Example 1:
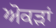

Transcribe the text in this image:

ਅੋਕੜਾਂ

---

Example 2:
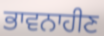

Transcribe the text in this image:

ਭਾਵਨਾਹੀਣ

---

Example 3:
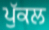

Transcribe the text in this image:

ਪੁੱਕਲ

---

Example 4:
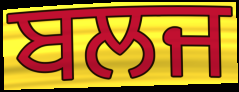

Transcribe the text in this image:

ਬਲਜ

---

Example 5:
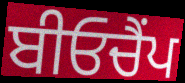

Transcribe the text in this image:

ਬੀਓਚੈਂਪ